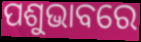
ପଶୁଭାବରେ